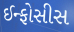
ઈન્ફોસીસ